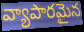
వ్యాపారమైన